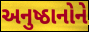
અનુષ્ઠાનોને